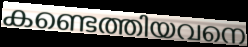
കണ്ടെത്തിയവനെ